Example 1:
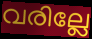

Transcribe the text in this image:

വരില്ലേ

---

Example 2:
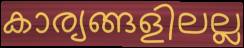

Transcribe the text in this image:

കാര്യങ്ങളിലല്ല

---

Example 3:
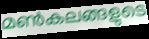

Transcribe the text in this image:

മൺകലങ്ങളുടെ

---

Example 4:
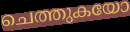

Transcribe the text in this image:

ചെത്തുകയോ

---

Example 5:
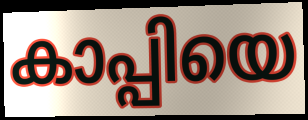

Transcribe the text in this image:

കാപ്പിയെ